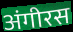
अंगीरस